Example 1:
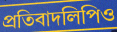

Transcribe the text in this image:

প্রতিবাদলিপিও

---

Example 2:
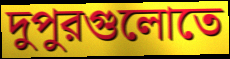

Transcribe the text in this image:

দুপুরগুলোতে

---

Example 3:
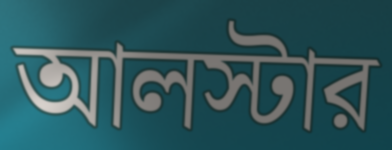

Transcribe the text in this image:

আলস্টার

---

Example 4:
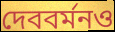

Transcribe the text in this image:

দেববর্মনও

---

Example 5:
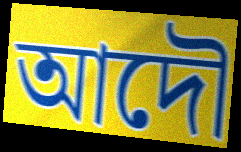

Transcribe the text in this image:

আদৌ